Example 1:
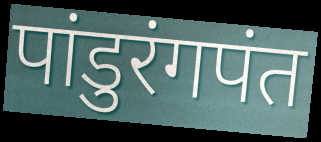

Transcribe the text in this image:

पांडुरंगपंत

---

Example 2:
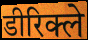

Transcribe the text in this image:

डीरिक्ले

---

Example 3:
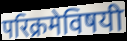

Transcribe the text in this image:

परिक्रमेविषयी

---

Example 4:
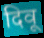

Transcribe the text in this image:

दिवू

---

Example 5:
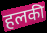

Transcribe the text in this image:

हलकी